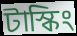
টাস্কিং